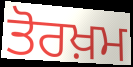
ਤੋਰਖ਼ਮ